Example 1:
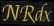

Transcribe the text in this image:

NRdx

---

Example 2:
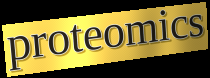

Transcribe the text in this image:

proteomics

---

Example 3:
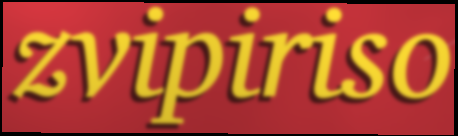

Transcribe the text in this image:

zvipiriso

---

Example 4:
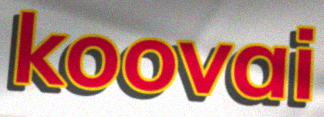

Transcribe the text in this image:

koovai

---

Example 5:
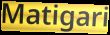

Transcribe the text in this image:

Matigari